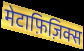
मेटाफ़िज़िक्स